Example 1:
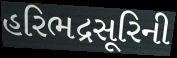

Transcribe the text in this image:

હરિભદ્રસૂરિની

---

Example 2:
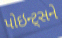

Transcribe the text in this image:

પોઇન્ટ્સને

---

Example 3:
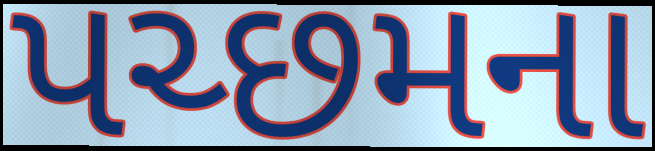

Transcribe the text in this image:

પચ્છમના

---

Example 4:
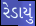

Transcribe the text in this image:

રેડાયું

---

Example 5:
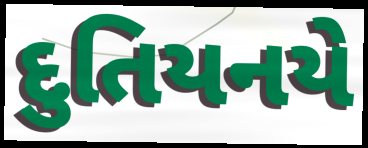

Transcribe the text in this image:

દુતિયનયે